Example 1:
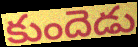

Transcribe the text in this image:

కుందెడు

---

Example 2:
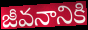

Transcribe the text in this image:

జీవనానికి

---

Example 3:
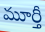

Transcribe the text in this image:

మూర్తీ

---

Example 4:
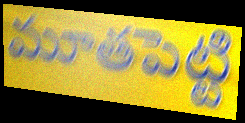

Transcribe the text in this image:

మూతపెట్టి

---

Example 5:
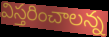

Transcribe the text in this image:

విస్తరించాలన్న